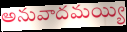
అనువాదమయ్యి